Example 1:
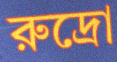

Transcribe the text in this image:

রুদ্রো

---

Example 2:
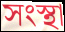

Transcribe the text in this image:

সংস্থা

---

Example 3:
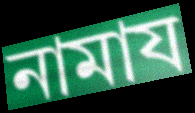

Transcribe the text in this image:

নামায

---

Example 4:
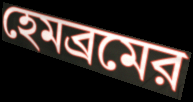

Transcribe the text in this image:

হেমব্রমের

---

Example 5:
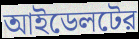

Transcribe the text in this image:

আইডেলটের